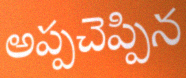
అప్పచెప్పిన